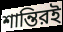
শান্তিরই